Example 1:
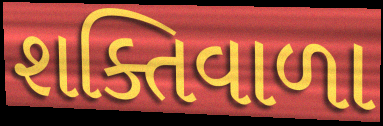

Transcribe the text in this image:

શક્તિવાળા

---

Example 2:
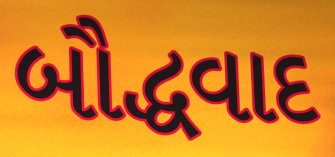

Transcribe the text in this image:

બૌદ્ધવાદ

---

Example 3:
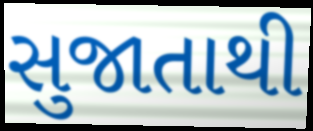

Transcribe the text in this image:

સુજાતાથી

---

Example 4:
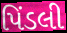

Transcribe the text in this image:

પિંડલી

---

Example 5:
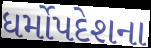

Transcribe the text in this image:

ધર્મોપદેશના